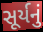
સૂર્યનું